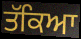
ਤੱਕਿਆ